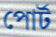
পোর্ট